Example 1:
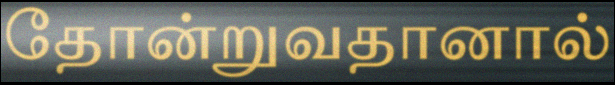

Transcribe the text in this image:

தோன்றுவதானால்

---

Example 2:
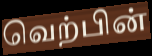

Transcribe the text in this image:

வெற்பின்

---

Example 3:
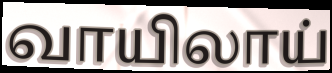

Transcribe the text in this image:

வாயிலாய்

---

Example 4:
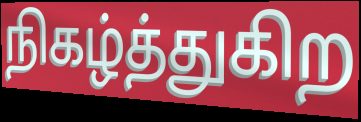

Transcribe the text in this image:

நிகழ்த்துகிற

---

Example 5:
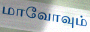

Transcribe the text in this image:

மாவோவும்